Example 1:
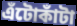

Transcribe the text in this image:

এঁটোকাঁটা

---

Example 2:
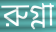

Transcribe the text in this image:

রুগ্না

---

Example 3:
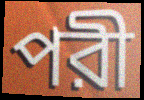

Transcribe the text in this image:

পরী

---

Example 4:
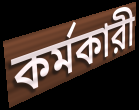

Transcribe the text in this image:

কর্মকারী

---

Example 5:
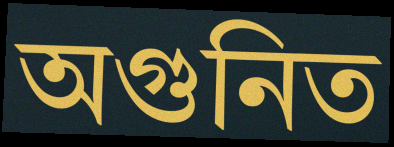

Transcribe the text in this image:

অগুনিত